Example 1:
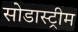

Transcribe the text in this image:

सोडास्ट्रीम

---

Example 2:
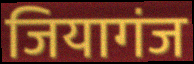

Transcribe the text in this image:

जियागंज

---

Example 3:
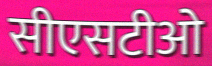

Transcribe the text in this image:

सीएसटीओ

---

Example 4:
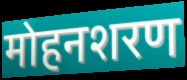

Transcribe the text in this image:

मोहनशरण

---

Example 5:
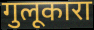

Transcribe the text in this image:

गुलूकारा